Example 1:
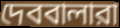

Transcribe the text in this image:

দেববালারা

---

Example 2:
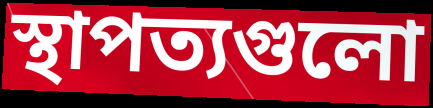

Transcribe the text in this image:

স্থাপত্যগুলো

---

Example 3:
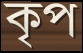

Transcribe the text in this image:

কৃপ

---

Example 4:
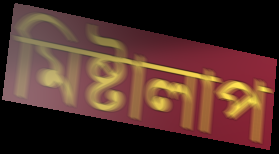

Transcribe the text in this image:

মিষ্টালাপ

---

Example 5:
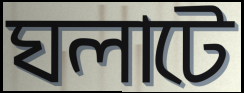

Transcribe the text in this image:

ঘলাটে